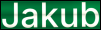
Jakub